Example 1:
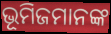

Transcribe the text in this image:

ଭୂମିଜମାନଙ୍କ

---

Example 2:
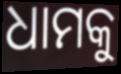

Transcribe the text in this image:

ଧାମକୁ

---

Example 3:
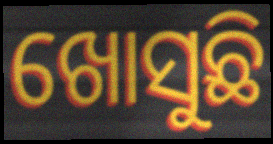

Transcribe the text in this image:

ଖୋସୁଛି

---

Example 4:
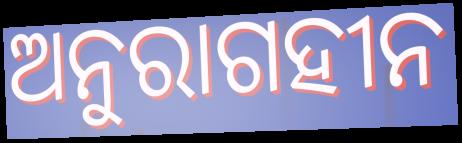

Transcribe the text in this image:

ଅନୁରାଗହୀନ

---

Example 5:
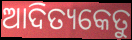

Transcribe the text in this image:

ଆଦିତ୍ୟକେତୁ